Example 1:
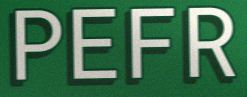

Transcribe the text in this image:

PEFR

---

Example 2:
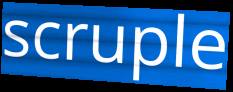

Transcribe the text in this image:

scruple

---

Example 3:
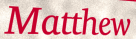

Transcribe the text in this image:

Matthew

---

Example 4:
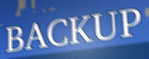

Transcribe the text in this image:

BACKUP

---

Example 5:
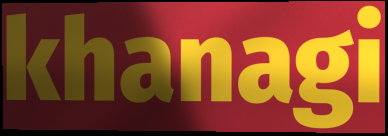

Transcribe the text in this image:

khanagi